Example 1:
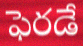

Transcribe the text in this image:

ఫెరడే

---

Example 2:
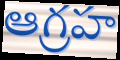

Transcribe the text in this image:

ఆగ్రహ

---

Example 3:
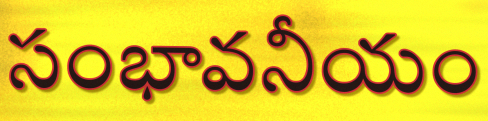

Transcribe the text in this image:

సంభావనీయం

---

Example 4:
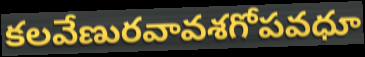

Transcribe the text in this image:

కలవేణురవావశగోపవధూ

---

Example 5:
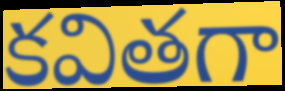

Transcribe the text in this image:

కవితగా